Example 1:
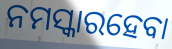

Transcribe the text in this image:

ନମସ୍କାରହେବା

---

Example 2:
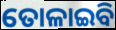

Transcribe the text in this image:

ତୋଳାଇବି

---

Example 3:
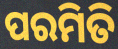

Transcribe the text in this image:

ପରମିତି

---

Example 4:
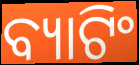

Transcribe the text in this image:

ବ୍ୟାଟିଂ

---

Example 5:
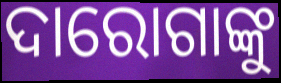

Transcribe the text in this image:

ଦାରୋଗାଙ୍କୁ